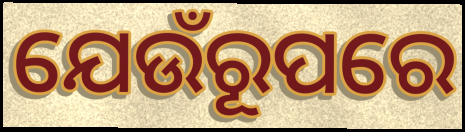
ଯେଉଁରୂପରେ